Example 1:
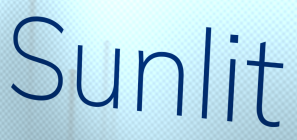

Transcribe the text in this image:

Sunlit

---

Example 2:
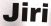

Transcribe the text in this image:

Jiri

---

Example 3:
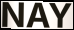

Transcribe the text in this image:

NAY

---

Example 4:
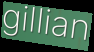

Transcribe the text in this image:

gillian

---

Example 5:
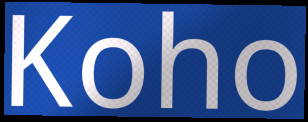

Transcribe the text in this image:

Koho